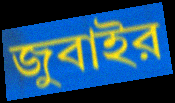
জুবাইর